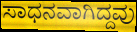
ಸಾಧನವಾಗಿದ್ದವು